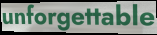
unforgettable